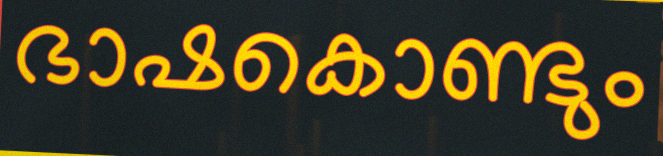
ഭാഷകൊണ്ടും